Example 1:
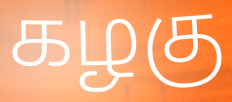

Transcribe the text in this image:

கழகு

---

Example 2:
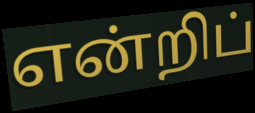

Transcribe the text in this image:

என்றிப்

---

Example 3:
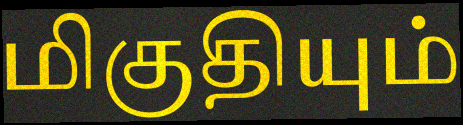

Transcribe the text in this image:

மிகுதியும்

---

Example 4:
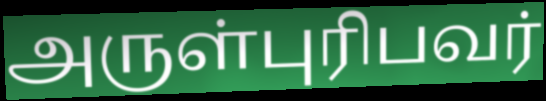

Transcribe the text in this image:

அருள்புரிபவர்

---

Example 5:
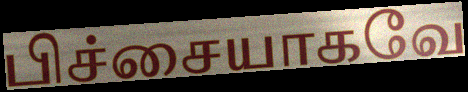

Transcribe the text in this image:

பிச்சையாகவே